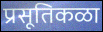
प्रसूतिकळा